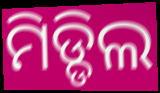
ମିଡ୍ଡିଲ